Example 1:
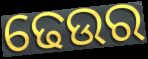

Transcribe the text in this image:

ଢେଉର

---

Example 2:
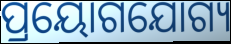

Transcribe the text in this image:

ପ୍ରୟୋଗଯୋଗ୍ୟ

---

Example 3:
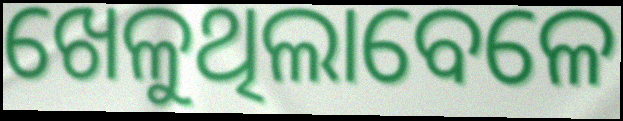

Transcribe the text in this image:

ଖେଳୁଥିଲାବେଳେ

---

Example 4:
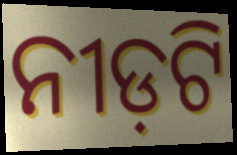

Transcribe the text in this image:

ନୀଡ଼ଟି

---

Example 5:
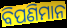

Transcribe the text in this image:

ବିପଣିମାନ